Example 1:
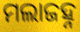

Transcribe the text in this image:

ମଲାଜହ୍ନ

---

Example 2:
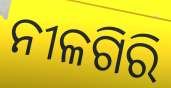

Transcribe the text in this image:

ନୀଳଗିରି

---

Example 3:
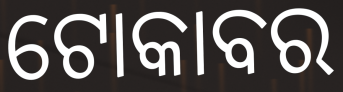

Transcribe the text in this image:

ଟୋକାବର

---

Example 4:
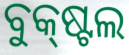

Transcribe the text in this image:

ବୁକ୍‌ଷ୍ଟଲ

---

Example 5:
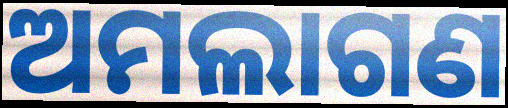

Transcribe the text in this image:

ଅମଲାଗଣ